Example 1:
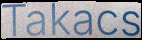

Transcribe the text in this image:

Takacs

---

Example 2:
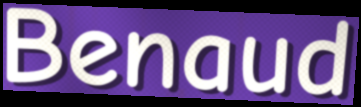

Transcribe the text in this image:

Benaud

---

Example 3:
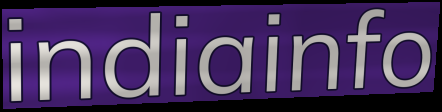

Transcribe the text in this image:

indiainfo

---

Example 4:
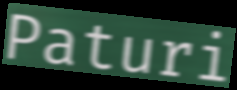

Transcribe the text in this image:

Paturi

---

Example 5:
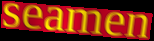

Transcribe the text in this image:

seamen